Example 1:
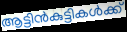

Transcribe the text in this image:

ആട്ടിൻകുട്ടികൾക്ക്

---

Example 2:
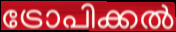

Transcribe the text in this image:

ട്രോപിക്കൽ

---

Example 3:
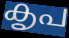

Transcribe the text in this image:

കൃപ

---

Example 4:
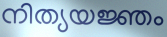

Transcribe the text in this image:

നിത്യയജ്ഞം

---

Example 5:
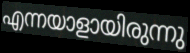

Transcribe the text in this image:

എന്നയാളായിരുന്നു